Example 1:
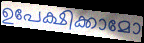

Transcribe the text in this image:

ഉപേക്ഷിക്കാമോ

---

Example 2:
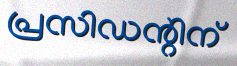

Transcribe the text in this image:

പ്രസിഡന്റിന്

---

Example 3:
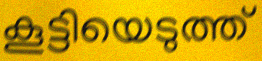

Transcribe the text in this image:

കൂട്ടിയെടുത്ത്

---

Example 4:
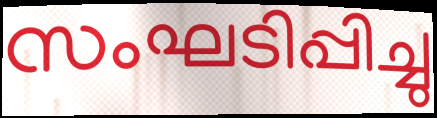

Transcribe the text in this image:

സംഘടിപ്പിച്ചു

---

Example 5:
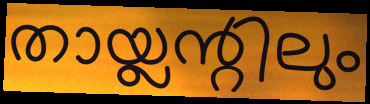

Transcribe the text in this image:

തായ്ലന്റിലും